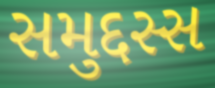
સમુદ્દસ્સ